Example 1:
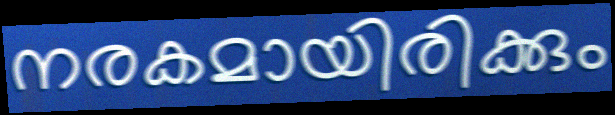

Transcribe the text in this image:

നരകമായിരിക്കും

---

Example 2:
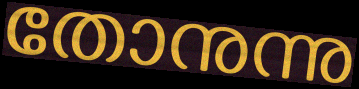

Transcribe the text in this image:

തോനുന്നു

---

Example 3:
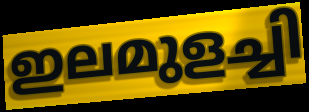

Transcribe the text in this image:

ഇലമുളച്ചി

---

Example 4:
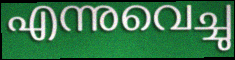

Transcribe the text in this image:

എന്നുവെച്ചു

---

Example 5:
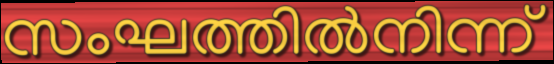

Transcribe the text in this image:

സംഘത്തിൽനിന്ന്